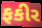
ફકીર